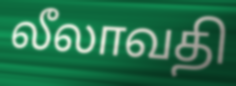
லீலாவதி